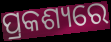
ପ୍ରକଶ୍ୟରେ